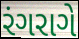
રંગરાગે